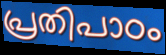
പ്രതിപാഠം